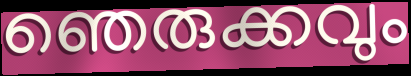
ഞെരുക്കവും